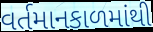
વર્તમાનકાળમાંથી